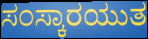
ಸಂಸ್ಕಾರಯುತ